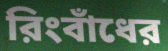
রিংবাঁধের